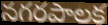
నగరపాలక